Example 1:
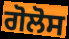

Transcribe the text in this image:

ਗੋਲੋਸ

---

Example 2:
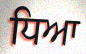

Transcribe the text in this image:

ਧਿਆ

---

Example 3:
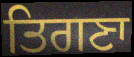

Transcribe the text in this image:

ਤਿਗਣਾ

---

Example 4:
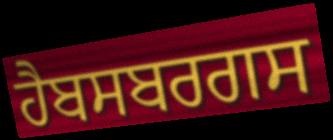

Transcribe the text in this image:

ਹੈਬਸਬਰਗਸ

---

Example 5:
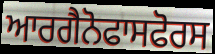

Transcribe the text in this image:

ਆਰਗੈਨੋਫਾਸਫੋਰਸ